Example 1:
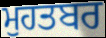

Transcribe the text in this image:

ਮੁਹਤਬਰ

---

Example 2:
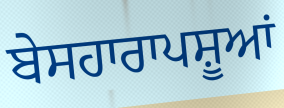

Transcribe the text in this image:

ਬੇਸਹਾਰਾਪਸ਼ੂਆਂ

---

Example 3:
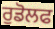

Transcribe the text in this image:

ਰੁਡੋਲਫ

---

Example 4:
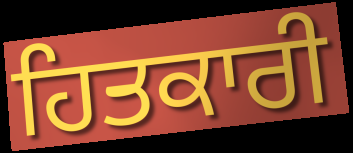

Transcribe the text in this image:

ਹਿਤਕਾਰੀ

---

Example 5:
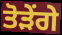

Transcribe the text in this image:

ਤੋੜੇਂਗੇ